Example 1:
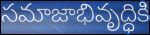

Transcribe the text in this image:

సమాజాభివృద్ధికి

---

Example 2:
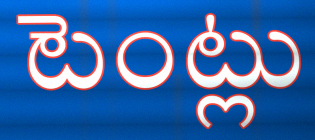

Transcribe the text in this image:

టెంట్లు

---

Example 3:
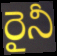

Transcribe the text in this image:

రైనీ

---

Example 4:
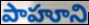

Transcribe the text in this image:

పాహూని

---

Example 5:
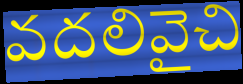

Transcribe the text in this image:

వదలివైచి